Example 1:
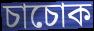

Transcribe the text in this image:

চাচোক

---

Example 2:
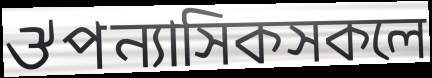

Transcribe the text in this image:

ঔপন্যাসিকসকলে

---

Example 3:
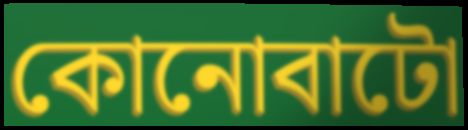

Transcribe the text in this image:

কোনোবাটো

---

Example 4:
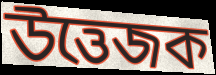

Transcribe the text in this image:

উত্তেজক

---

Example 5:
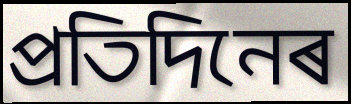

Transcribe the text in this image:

প্ৰতিদিনেৰ